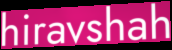
hiravshah